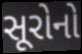
સૂરોનો